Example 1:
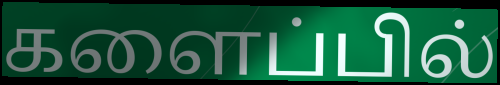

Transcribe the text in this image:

களைப்பில்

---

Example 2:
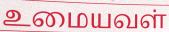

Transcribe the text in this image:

உமையவள்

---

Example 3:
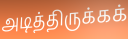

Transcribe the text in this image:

அடித்திருக்கக்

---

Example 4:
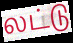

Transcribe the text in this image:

லட்டு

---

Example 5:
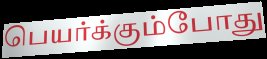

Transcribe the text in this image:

பெயர்க்கும்போது